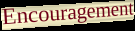
Encouragement